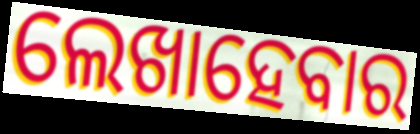
ଲେଖାହେବାର